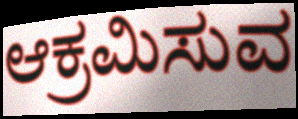
ಆಕ್ರಮಿಸುವ